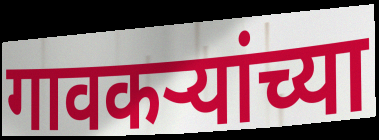
गावकऱ्यांच्या